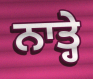
ਨਾਤ੍ਹੇ